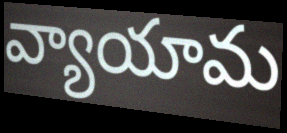
వ్యాయామ